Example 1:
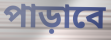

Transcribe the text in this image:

পাড়াবে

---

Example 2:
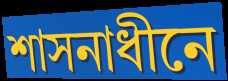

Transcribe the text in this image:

শাসনাধীনে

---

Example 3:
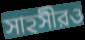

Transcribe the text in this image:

সাহসীরও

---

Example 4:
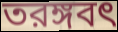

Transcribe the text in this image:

তরঙ্গবৎ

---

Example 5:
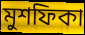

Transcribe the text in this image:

মুশফিকা